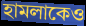
হামলাকেও